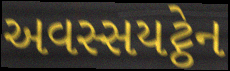
અવસ્સયટ્ઠેન